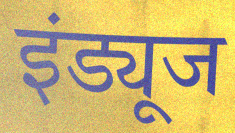
इंड्यूज